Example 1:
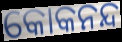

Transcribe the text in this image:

କୋକନନ୍ଦ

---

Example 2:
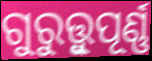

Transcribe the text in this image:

ଗୁରୁତ୍ତ୍ୱୁପୂର୍ଣ୍ଣ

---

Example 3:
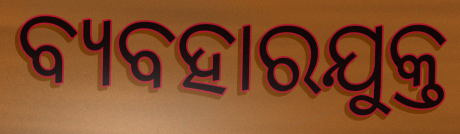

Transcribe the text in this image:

ବ୍ୟବହାରଯୁକ୍ତ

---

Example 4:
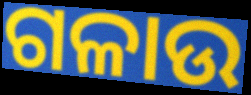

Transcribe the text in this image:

ଗଳାଉ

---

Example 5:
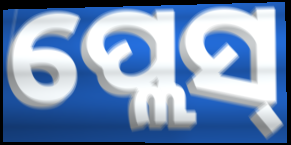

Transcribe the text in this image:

ପ୍ଲେସ୍